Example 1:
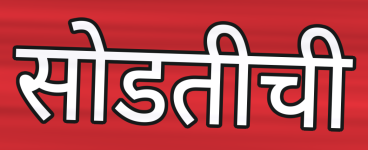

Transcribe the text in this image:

सोडतीची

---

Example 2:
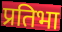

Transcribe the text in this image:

प्रतिभा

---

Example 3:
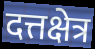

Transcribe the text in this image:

दत्तक्षेत्र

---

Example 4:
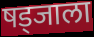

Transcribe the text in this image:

षड्जाला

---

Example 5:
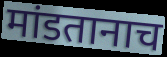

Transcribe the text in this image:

मांडतानाच